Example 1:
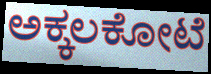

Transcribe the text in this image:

ಅಕ್ಕಲಕೋಟೆ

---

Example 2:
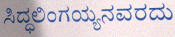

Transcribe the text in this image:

ಸಿದ್ಧಲಿಂಗಯ್ಯನವರದು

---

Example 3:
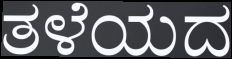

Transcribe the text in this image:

ತಳೆಯದ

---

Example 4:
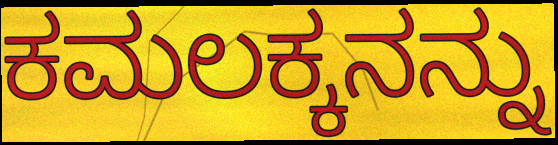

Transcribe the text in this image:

ಕಮಲಕ್ಕನನ್ನು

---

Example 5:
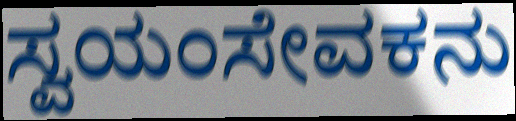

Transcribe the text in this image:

ಸ್ವಯಂಸೇವಕನು